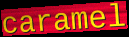
caramel